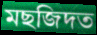
মছজিদত